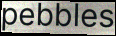
pebbles